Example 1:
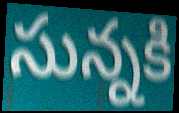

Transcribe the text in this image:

సున్నకి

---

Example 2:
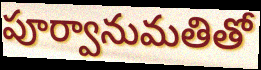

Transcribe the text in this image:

పూర్వానుమతితో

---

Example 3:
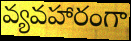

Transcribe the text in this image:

వ్యవహారంగా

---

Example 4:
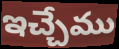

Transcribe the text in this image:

ఇచ్చేము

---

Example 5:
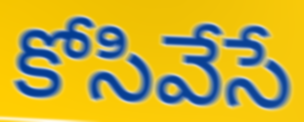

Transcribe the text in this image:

కోసివేసే